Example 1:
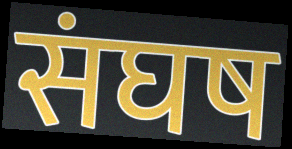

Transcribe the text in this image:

संघष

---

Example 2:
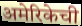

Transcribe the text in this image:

अमेरिकेची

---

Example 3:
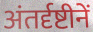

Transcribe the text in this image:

अंतर्दृष्टीनें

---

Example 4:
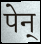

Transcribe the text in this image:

पेन्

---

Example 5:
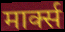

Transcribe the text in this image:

मार्क्स